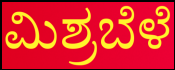
ಮಿಶ್ರಬೆಳೆ